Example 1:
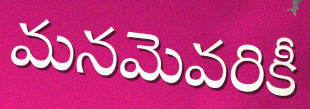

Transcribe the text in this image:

మనమెవరికీ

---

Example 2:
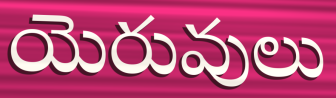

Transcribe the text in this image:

యెరువులు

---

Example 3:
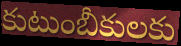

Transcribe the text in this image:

కుటుంబీకులకు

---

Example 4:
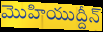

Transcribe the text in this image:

మొహియుద్దీన్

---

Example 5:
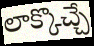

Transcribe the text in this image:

లాక్కొచ్చే